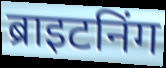
ब्राइटनिंग